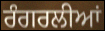
ਰੰਗਰਲੀਆਂ